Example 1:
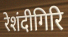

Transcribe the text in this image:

रेशंदीगिरि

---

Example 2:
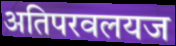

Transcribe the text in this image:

अतिपरवलयज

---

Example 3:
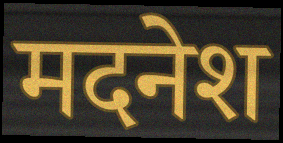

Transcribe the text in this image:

मदनेश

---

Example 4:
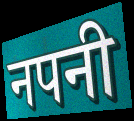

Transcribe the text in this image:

नपनी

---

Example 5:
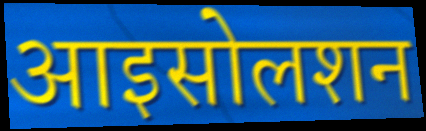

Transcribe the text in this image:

आइसोलशन